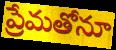
ప్రేమతోనూ